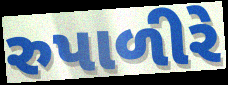
રુપાળીરે